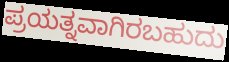
ಪ್ರಯತ್ನವಾಗಿರಬಹುದು